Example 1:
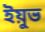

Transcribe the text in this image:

ইয়ুভ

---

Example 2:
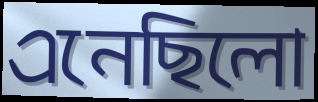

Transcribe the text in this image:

এনেছিলো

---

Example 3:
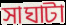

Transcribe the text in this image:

সাঘাটা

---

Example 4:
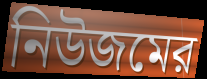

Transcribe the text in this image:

নিউজমের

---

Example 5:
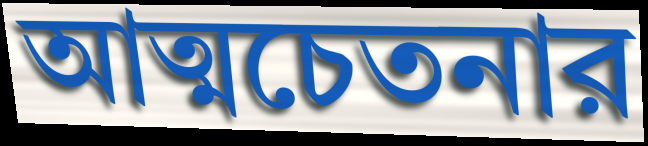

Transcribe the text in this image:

আত্মচেতনার